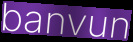
banvun